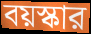
বয়স্কার